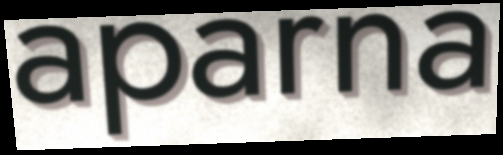
aparna